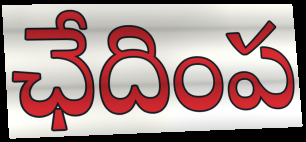
ఛేదింప